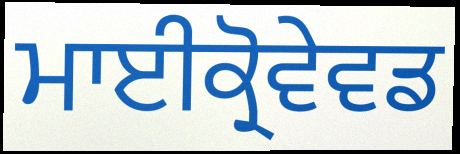
ਮਾਈਕ੍ਰੋਵੇਵਡ